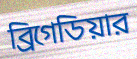
ব্রিগেডিয়ার